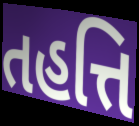
તહત્તિ